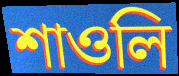
শাওলি